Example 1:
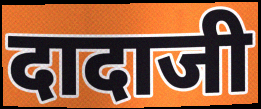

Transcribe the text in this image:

दादाजी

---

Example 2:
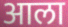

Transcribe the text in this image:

आला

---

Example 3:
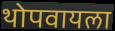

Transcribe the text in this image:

थोपवायला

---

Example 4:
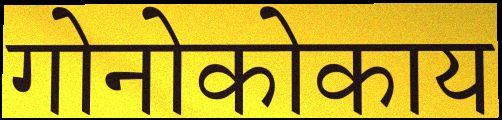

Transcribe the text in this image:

गोनोकोकाय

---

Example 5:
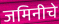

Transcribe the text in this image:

जमिनीचे